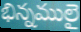
భిన్నములై